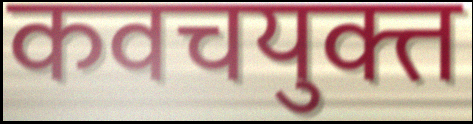
कवचयुक्त